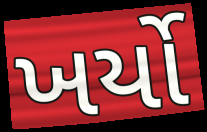
ખર્યો